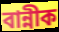
বান্নীক